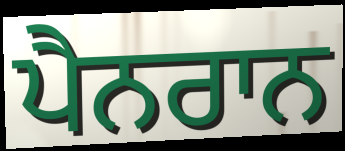
ਪੈਨਰਾਨ